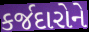
કર્જદારોને